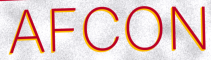
AFCON